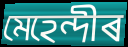
মেহেন্দীৰ